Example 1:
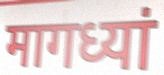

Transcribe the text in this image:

मागध्यां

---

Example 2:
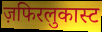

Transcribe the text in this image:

ज़फिरलुकास्ट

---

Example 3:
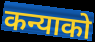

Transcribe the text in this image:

कन्याको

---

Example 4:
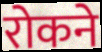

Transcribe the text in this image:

रोकने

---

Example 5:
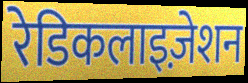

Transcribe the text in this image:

रेडिकलाइज़ेशन